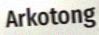
Arkotong